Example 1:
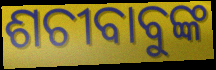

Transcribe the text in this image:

ଶଚୀବାବୁଙ୍କ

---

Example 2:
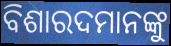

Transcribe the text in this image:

ବିଶାରଦମାନଙ୍କୁ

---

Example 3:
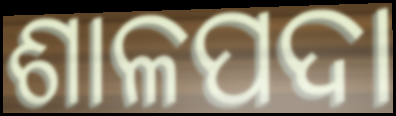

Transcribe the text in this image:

ଶାଳପଦା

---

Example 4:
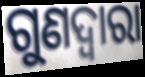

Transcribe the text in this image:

ଗୁଣଦ୍ଵାରା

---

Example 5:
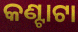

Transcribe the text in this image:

କଣ୍ଟାଟା